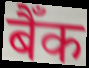
बैँक